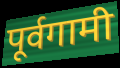
पूर्वगामी